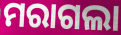
ମରାଗଲା